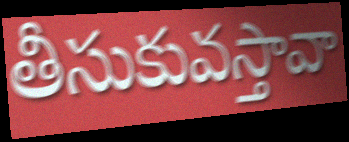
తీసుకువస్తావా